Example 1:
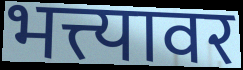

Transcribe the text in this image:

भत्त्यावर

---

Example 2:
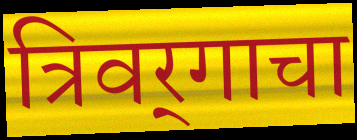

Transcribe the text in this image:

त्रिवर्गाचा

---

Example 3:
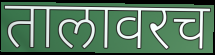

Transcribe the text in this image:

तालावरच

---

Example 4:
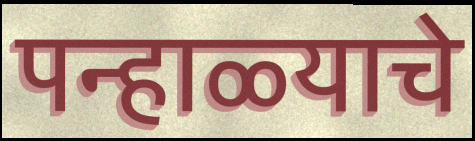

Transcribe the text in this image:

पन्हाळ्याचे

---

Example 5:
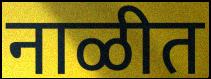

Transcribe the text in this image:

नाळीत